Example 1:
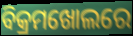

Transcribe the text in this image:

ବିକ୍ରମଖୋଲରେ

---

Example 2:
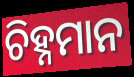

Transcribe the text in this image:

ଚିହ୍ନମାନ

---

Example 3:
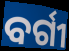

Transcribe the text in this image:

ବର୍ଗୀ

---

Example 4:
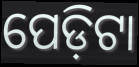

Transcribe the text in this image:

ପେଡ଼ିଟା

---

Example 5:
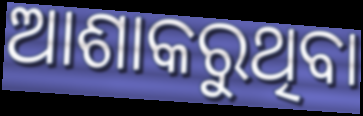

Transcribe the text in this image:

ଆଶାକରୁଥିବା